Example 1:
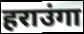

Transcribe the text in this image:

हराउंगा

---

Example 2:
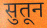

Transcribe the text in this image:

सुतून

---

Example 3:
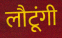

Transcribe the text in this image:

लौटूंगी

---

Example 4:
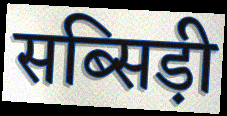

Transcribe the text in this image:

सब्सिड़ी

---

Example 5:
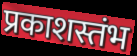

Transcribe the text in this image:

प्रकाशस्तंभ